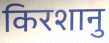
किरशानु